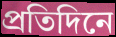
প্ৰতিদিনে